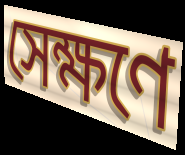
সেক্ষণে